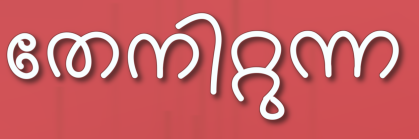
തേനിറ്റുന്ന